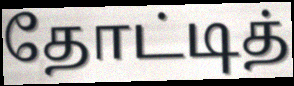
தோட்டித்